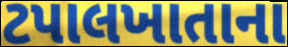
ટપાલખાતાના